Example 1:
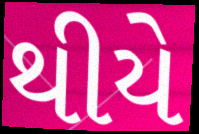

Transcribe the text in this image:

થીયે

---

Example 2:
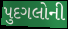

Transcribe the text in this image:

પુદગલોની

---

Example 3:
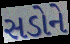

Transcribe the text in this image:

સડોને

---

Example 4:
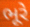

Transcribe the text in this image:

ભૂરે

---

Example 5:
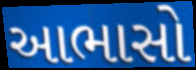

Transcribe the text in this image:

આભાસો